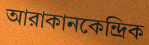
আরাকানকেন্দ্রিক